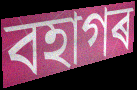
বহাগৰ